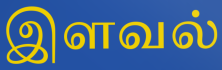
இளவல்